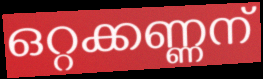
ഒറ്റക്കണ്ണന്